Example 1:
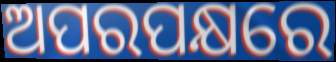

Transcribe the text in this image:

ଅପରପକ୍ଷରେ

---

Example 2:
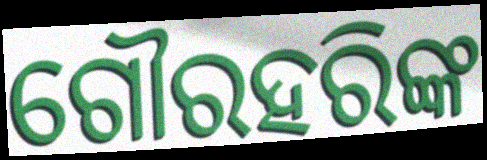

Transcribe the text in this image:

ଗୌରହରିଙ୍କ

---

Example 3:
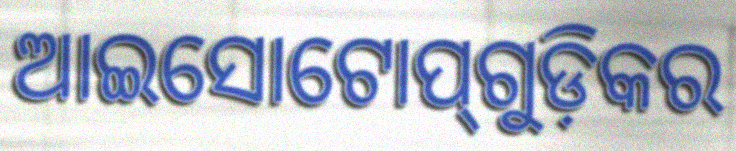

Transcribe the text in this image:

ଆଇସୋଟୋପ୍‌ଗୁଡ଼ିକର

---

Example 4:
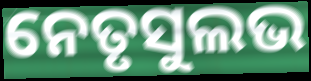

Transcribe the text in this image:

ନେତୃସୁଲଭ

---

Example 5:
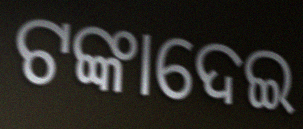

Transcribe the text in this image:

ଟଙ୍କାଦେଇ